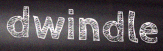
dwindle